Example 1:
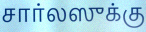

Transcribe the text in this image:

சார்லஸுக்கு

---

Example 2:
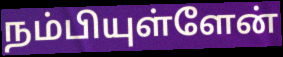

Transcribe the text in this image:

நம்பியுள்ளேன்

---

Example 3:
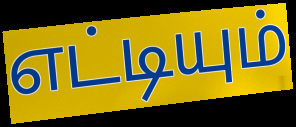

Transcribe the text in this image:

எட்டியும்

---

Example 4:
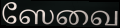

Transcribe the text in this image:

ஸேவை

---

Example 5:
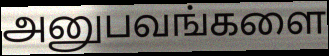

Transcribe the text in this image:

அனுபவங்களை